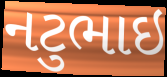
નટુભાઇ